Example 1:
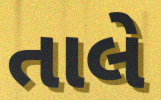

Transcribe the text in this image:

તાલે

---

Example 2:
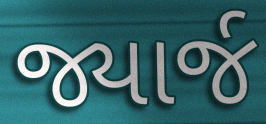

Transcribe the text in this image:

જ્યાર્જ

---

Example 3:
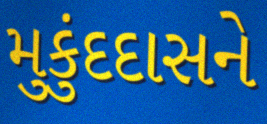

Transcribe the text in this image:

મુકુંદદાસને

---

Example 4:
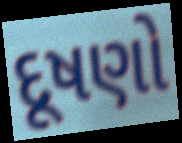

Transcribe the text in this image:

દૂષણો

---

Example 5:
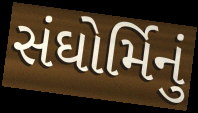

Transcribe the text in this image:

સંઘોર્મિનું